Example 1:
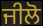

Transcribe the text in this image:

ਜੀਲੋ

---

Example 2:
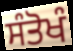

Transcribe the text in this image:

ਸੰਤੋਖੰ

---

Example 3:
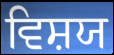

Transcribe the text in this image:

ਵਿਸ਼ਯ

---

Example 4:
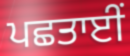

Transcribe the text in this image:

ਪਛਤਾਈਂ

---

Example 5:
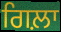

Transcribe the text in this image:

ਗਿਲ਼ਾ